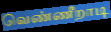
வெண்ணீறாடி